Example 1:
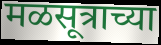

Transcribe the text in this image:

मळसूत्राच्या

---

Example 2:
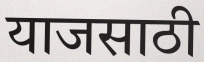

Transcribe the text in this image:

याजसाठी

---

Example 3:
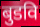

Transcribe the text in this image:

बुडवि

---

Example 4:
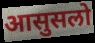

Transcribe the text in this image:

आसुसलो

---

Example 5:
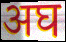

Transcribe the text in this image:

अघ